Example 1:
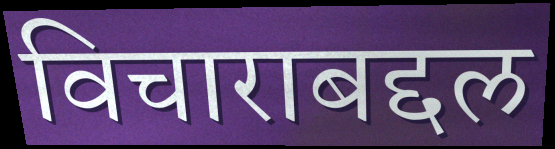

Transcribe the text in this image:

विचाराबद्दल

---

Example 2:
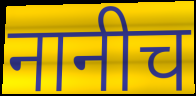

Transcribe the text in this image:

नानीच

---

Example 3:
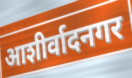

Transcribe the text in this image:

आशीर्वादनगर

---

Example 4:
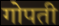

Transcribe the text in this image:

गोपती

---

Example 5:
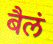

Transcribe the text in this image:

बैलं